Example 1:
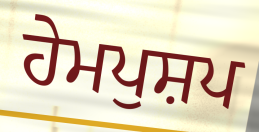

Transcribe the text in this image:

ਹੇਮਪੁਸ਼ਪ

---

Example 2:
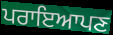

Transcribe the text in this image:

ਪਰਾਇਆਪਣ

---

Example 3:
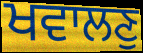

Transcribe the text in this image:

ਖਵਾਲਣੁ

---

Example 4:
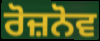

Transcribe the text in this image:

ਰੋਜ਼ਨੋਵ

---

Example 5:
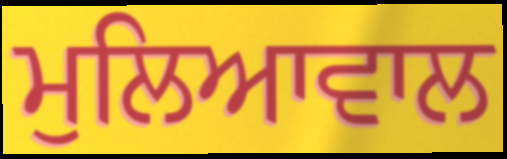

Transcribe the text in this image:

ਮੁਲਿਆਵਾਲ